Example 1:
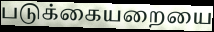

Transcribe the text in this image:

படுக்கையறையை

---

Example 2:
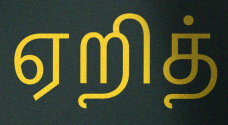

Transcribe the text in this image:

ஏறித்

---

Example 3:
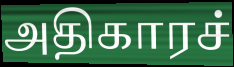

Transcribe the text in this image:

அதிகாரச்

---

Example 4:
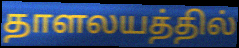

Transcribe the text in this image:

தாளலயத்தில்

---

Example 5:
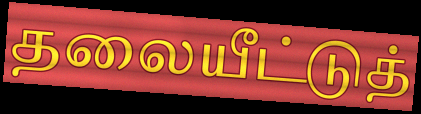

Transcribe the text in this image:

தலையீட்டுத்